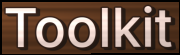
Toolkit